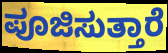
ಪೂಜಿಸುತ್ತಾರೆ